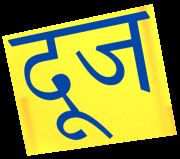
दूज